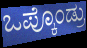
ಒಪ್ಕೊಂಡ್ರು